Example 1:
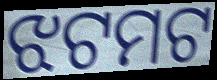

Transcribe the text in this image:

ଝଟମଟ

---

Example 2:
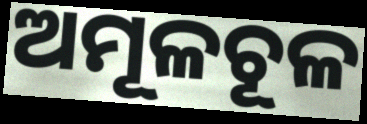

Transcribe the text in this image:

ଅମୂଳଚୂଳ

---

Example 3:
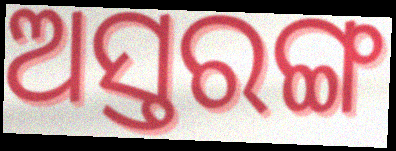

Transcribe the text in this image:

ଅସ୍ତରଙ୍ଗ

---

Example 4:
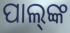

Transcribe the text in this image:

ପାଲ୍‌ଙ୍କ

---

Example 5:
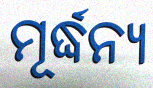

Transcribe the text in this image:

ମୂର୍ଦ୍ଧନ୍ୟ